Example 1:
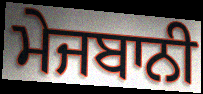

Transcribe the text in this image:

ਮੇਜਬਾਨੀ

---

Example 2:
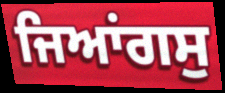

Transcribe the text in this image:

ਜਿਆਂਗਸੁ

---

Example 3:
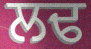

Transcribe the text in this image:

ਲਢ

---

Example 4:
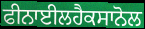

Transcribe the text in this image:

ਫੀਨਾਈਲਹੈਕਸਾਨੋਲ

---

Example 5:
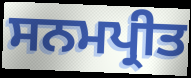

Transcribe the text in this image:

ਸਨਮਪ੍ਰੀਤ